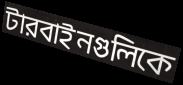
টারবাইনগুলিকে